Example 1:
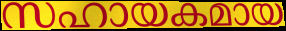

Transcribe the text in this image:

സഹായകമായ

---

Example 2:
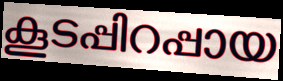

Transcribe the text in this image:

കൂടപ്പിറപ്പായ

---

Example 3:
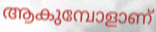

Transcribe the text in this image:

ആകുമ്പോളാണ്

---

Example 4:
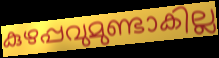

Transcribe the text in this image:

കുഴപ്പവുമുണ്ടാകില്ല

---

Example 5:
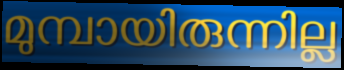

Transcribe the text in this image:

മുമ്പായിരുന്നില്ല